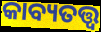
କାବ୍ୟତତ୍ତ୍ୱ